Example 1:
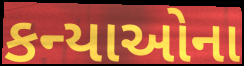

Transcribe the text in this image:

કન્યાઓના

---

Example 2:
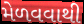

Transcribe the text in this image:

મેળવવાથી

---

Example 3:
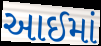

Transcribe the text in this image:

આઈમાં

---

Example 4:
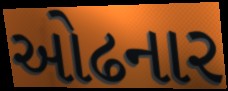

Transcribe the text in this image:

ઓઢનાર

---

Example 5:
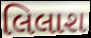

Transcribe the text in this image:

લિલાશ